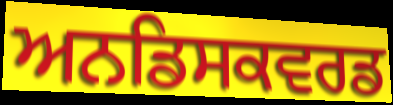
ਅਨਡਿਸਕਵਰਡ